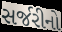
સર્જરીનો